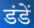
डंडें